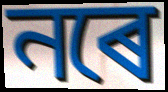
নৰে